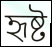
হৃষ্ট